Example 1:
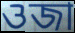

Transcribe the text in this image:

ওজা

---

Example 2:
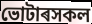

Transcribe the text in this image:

ভোটাৰসকল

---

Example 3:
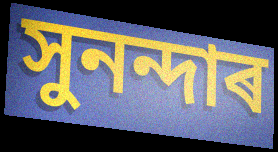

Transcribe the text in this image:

সুনন্দাৰ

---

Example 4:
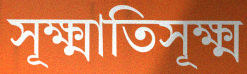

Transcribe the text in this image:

সূক্ষ্মাতিসূক্ষ্ম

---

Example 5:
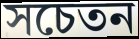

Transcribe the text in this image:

সচেতন